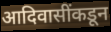
आदिवासींकडून